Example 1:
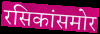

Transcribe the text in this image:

रसिकांसमोर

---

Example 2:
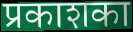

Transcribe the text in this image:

प्रकाशका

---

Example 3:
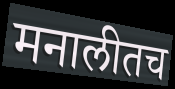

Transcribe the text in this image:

मनालीतच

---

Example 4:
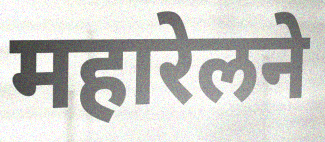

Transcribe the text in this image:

महारेलने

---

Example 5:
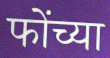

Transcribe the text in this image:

फोंच्या